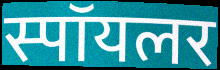
स्पॉयलर